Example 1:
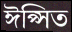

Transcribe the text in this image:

ঈপ্সিত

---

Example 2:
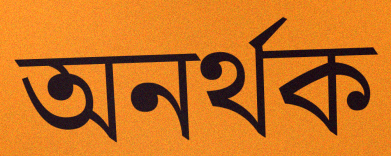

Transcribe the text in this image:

অনৰ্থক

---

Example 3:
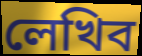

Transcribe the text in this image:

লেখিব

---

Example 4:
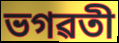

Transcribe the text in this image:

ভগৱতী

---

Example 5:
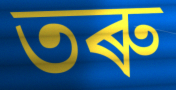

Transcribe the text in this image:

তৰু